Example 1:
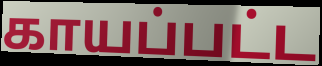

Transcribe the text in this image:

காயப்பட்ட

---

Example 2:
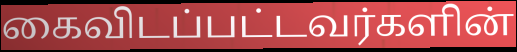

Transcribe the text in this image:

கைவிடப்பட்டவர்களின்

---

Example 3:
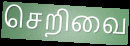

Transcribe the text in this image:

செறிவை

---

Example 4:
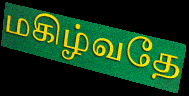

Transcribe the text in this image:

மகிழ்வதே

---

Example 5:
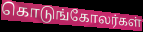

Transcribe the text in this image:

கொடுங்கோலர்கள்